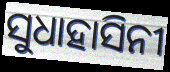
ସୁଧାହାସିନୀ